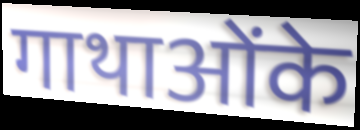
गाथाओंके